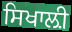
ਸਿਖਾਲ਼ੀ